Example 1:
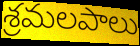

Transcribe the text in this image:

శ్రమలపాలు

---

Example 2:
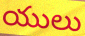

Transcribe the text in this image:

యులు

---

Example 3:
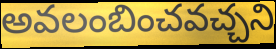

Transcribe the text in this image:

అవలంబించవచ్చని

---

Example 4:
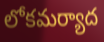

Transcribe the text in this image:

లోకమర్యాద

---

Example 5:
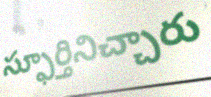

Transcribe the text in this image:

స్ఫూర్తినిచ్చారు